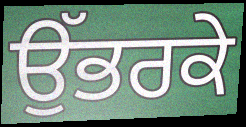
ਉੱਭਰਕੇ